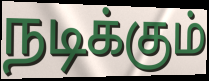
நடிக்கும்